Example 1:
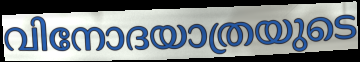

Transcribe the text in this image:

വിനോദയാത്രയുടെ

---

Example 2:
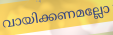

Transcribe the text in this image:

വായിക്കണമല്ലോ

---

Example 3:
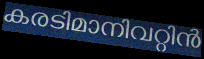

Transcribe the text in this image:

കരടിമാനിവറ്റിൻ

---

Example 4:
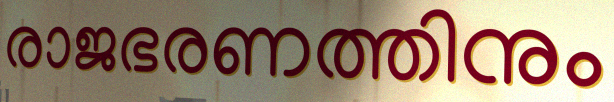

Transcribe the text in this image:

രാജഭരണത്തിനും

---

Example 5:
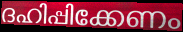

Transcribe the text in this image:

ദഹിപ്പിക്കേണം